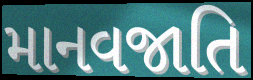
માનવજાતિ